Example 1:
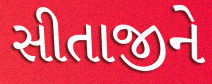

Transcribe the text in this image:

સીતાજીને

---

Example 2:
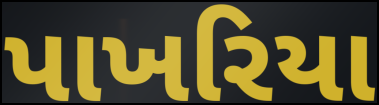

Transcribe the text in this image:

પાખરિયા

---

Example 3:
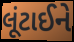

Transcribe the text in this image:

લૂંટાઈને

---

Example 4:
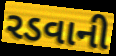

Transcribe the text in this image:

રડવાની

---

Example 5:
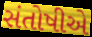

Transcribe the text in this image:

સંતોષીએ